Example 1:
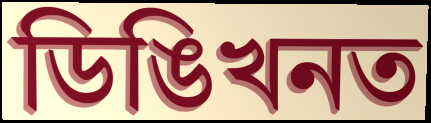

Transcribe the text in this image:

ডিঙিখনত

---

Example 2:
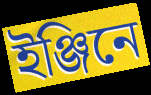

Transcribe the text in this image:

ইঞ্জিনে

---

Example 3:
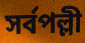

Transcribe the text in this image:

সৰ্বপল্লী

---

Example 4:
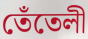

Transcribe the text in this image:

তেঁতেলী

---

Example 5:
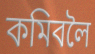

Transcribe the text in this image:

কমিবলৈ